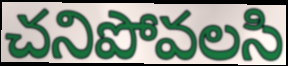
చనిపోవలసి